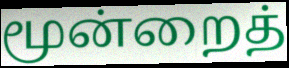
மூன்றைத்